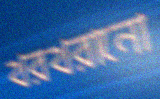
থরথরানো